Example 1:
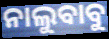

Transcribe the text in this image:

ନାଲୁବାବୁ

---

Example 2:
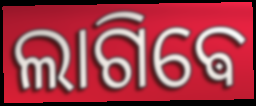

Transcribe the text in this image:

ଲାଗିଵେ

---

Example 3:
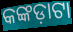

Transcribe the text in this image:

କଙ୍କଡ଼ାଟା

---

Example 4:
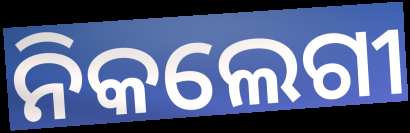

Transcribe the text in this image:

ନିକଲେଗୀ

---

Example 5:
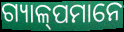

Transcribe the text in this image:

ଗ୍ୟାଳ୍‍ପମାନେ